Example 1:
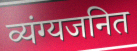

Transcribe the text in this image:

व्यंग्यजनित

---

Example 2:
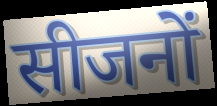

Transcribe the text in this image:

सीजनों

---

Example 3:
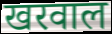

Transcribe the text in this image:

खरवाल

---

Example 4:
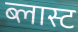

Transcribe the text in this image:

ब्लास्ट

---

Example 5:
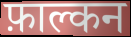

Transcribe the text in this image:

फ़ाल्कन